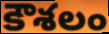
కౌశలం